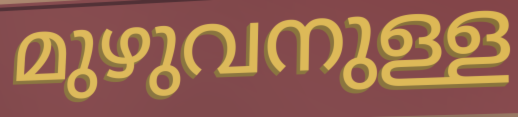
മുഴുവനുള്ള